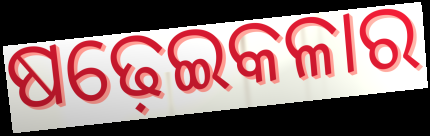
ଷଢ଼େଇକଳାର